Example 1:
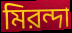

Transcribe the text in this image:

মিরন্দা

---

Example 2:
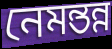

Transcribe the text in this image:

নেমন্তন্ন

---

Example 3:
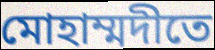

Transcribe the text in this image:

মোহাম্মদীতে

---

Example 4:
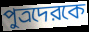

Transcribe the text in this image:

পুত্রদেরকে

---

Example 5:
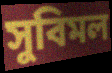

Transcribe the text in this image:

সুবিমল